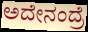
ಅದೇನಂದ್ರೆ